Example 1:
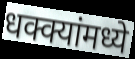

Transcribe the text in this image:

धक्क्यांमध्ये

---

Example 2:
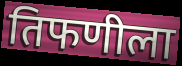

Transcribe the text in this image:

तिफणीला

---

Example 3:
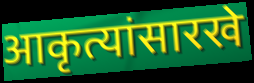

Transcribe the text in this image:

आकृत्यांसारखे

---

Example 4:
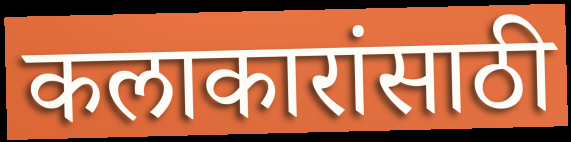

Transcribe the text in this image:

कलाकारांसाठी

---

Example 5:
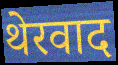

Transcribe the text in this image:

थेरवाद